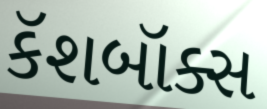
કૅશબૉક્સ